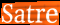
Satre